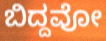
ಬಿದ್ದವೋ